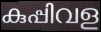
കുപ്പിവള